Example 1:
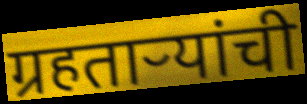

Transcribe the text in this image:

ग्रहताऱ्यांची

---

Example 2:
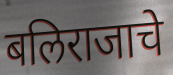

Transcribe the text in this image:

बलिराजाचे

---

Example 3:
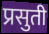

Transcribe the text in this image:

प्रसुती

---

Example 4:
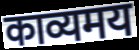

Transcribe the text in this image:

काव्यमय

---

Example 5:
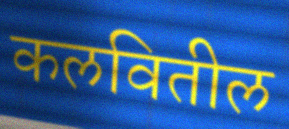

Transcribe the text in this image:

कलवितील